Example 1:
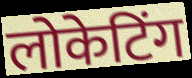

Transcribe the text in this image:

लोकेटिंग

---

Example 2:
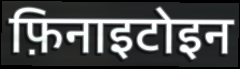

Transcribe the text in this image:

फ़िनाइटोइन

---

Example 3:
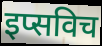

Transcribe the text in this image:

इप्सविच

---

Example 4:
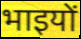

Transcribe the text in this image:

भाइयों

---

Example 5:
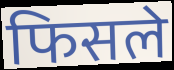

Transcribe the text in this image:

फिसले